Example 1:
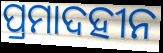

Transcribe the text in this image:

ପ୍ରମାଦହୀନ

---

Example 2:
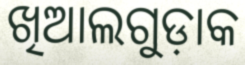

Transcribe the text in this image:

ଖିଆଲଗୁଡ଼ାକ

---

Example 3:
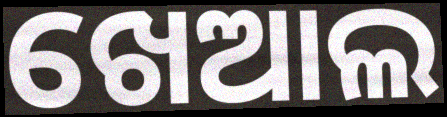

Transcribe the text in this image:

ଖେଆଲ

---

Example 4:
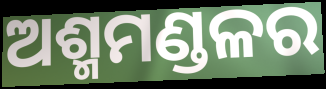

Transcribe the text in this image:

ଅଶ୍ମମଣ୍ଡଳର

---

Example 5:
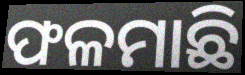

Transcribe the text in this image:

ଫଳମାଛି